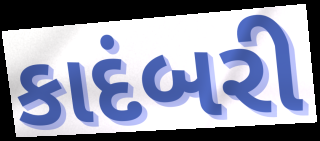
કાદંબરી